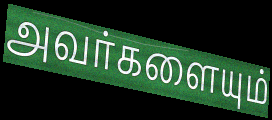
அவர்களையும்